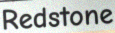
Redstone